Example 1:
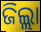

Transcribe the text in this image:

ଜିଲ୍ଲା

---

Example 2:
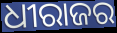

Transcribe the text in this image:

ଧୀରାଜର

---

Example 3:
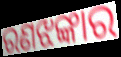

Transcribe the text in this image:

ରଣଝଙ୍କାର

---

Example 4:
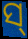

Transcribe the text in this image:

ସ୍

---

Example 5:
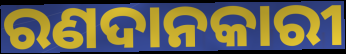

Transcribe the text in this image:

ରଣଦାନକାରୀ